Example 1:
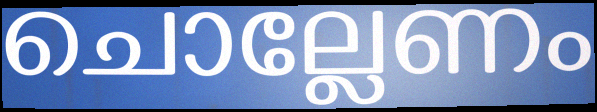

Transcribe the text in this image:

ചൊല്ലേണം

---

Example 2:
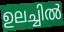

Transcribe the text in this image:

ഉലച്ചിൽ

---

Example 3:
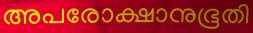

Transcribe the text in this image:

അപരോക്ഷാനുഭൂതി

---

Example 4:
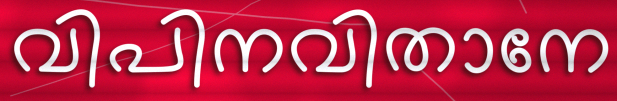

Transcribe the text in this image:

വിപിനവിതാനേ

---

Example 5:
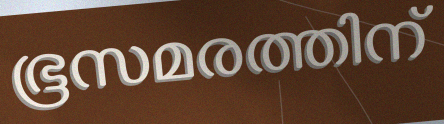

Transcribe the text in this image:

ഭൂസമരത്തിന്